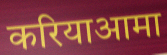
करियाआमा